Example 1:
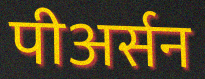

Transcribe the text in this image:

पीअर्सन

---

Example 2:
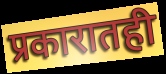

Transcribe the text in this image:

प्रकारातही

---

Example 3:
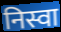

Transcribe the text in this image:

निस्वा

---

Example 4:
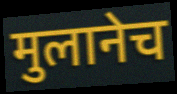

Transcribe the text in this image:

मुलानेच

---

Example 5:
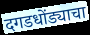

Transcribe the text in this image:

दगडधोंड्याचा